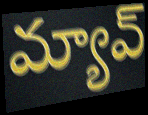
మ్యావ్